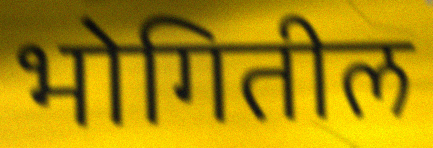
भोगितील